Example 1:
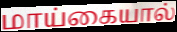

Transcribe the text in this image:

மாய்கையால்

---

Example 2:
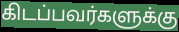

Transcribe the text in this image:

கிடப்பவர்களுக்கு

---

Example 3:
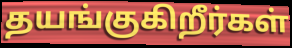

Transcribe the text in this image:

தயங்குகிறீர்கள்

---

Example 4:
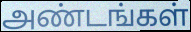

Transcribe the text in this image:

அண்டங்கள்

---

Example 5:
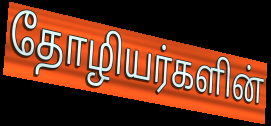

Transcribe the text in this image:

தோழியர்களின்